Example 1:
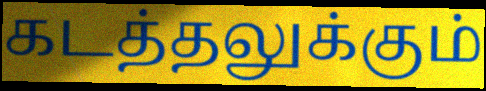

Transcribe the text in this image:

கடத்தலுக்கும்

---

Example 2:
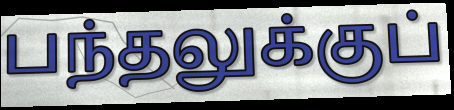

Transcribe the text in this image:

பந்தலுக்குப்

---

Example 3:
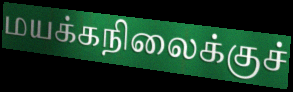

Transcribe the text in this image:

மயக்கநிலைக்குச்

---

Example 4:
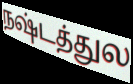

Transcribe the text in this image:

நஷ்டத்துல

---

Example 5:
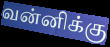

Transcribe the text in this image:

வன்னிக்கு